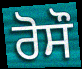
ਰੋਸੌ